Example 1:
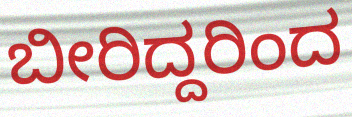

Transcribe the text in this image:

ಬೀರಿದ್ದರಿಂದ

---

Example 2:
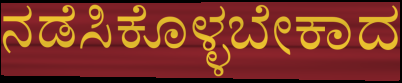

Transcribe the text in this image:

ನಡೆಸಿಕೊಳ್ಳಬೇಕಾದ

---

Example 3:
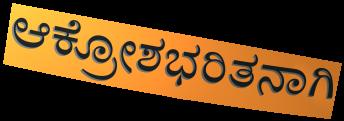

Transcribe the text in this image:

ಆಕ್ರೋಶಭರಿತನಾಗಿ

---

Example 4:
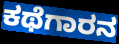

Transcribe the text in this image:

ಕಥೆಗಾರನ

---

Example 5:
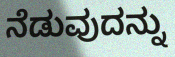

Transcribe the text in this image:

ನೆಡುವುದನ್ನು